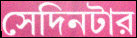
সেদিনটার